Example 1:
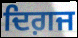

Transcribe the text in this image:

ਦਿਗ਼ਜ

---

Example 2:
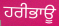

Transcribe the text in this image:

ਹਰੀਭਾਊ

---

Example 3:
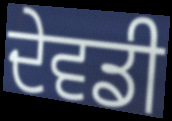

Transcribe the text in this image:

ਦੇਵਡੀ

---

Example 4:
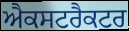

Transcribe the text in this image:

ਐਕਸਟਰੈਕਟਰ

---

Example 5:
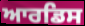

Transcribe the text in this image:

ਆਰਡਿਸ